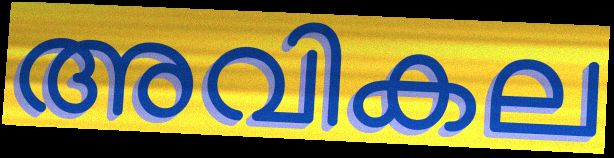
അവികല